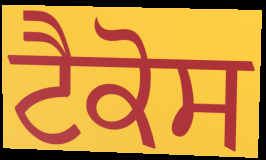
ਟੈਕੋਸ